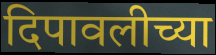
दिपावलीच्या